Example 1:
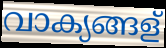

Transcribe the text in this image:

വാക്യങ്ങള്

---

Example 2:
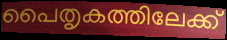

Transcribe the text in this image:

പൈതൃകത്തിലേക്ക്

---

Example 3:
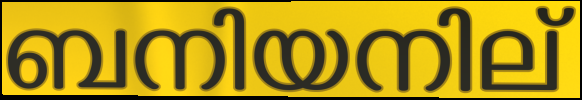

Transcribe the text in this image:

ബനിയനില്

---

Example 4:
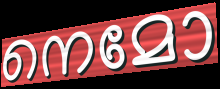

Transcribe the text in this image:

നെമോ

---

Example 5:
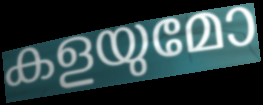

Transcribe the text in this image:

കളയുമോ